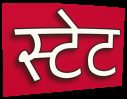
स्टेट